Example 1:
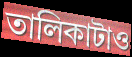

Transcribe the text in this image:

তালিকাটাও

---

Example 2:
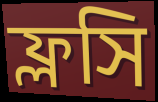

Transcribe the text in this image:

ফ্লসি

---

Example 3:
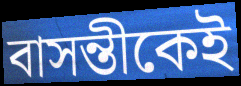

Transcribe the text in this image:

বাসন্তীকেই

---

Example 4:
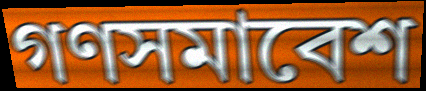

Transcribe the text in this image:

গণসমাবেশ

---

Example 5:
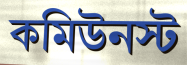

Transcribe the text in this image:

কমিউনস্ট